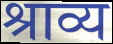
श्राव्य